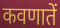
कवणातें